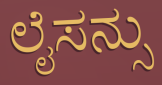
ಲೈಸನ್ಸು